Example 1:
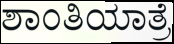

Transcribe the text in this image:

ಶಾಂತಿಯಾತ್ರೆ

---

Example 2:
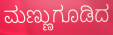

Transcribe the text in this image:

ಮಣ್ಣುಗೂಡಿದ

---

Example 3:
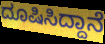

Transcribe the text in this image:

ದೂಷಿಸಿದ್ದಾನೆ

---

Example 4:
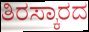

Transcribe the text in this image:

ತಿರಸ್ಕಾರದ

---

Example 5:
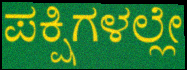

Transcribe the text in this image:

ಪಕ್ಷಿಗಳಲ್ಲೇ